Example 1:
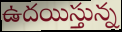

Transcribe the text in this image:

ఉదయిస్తున్న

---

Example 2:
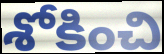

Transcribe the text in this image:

శోకించి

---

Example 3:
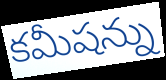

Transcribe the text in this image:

కమీషన్ను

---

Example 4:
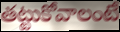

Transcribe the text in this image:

తట్టుకోవాలంటే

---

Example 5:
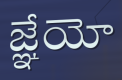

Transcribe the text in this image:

జ్ఞేయో